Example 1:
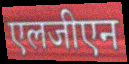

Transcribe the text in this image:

एलजीएन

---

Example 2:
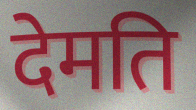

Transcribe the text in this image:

देमति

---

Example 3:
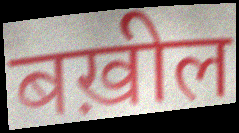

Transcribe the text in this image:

बख़ील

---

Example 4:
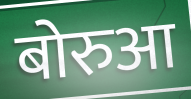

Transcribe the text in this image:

बोरुआ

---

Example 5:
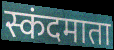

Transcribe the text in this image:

स्‍कंदमाता